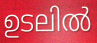
ഉടലിൽ